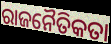
ରାଜନୈତିକତା